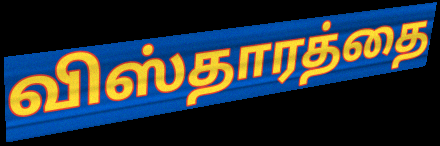
விஸ்தாரத்தை